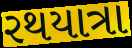
રથયાત્રા